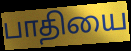
பாதியை